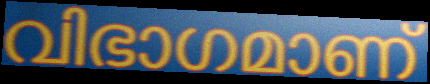
വിഭാഗമാണ്